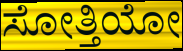
ಸೋತ್ತಿಯೋ